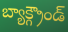
బ్యాక్గ్రౌండ్